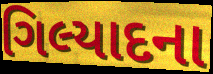
ગિલ્યાદના